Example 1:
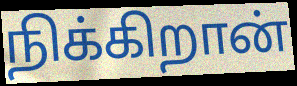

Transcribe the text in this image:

நிக்கிறான்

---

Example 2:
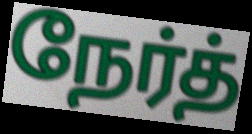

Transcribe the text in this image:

நேர்த்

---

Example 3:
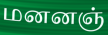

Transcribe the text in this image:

மனனஞ்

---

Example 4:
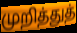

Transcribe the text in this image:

முறித்துத்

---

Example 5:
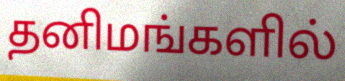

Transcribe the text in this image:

தனிமங்களில்